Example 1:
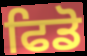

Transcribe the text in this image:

ਫਿਡੋ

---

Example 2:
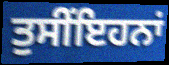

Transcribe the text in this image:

ਤੁਸੀਂਇਹਨਾਂ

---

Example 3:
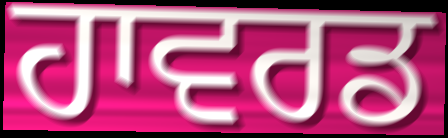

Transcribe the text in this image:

ਹਾਵਰਡ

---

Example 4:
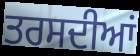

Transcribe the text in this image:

ਤਰਸਦੀਆਂ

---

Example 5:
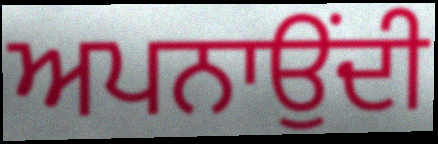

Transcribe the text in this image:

ਅਪਨਾਉਂਦੀ